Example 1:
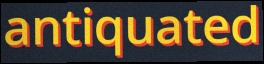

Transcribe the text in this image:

antiquated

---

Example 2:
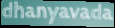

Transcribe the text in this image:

dhanyavada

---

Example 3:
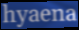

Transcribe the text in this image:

hyaena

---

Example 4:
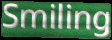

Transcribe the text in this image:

Smiling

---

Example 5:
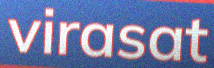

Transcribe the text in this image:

virasat